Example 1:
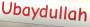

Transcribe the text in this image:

Ubaydullah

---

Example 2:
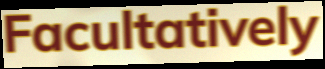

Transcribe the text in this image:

Facultatively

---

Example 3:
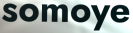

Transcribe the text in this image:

somoye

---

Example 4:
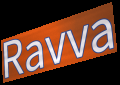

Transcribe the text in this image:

Ravva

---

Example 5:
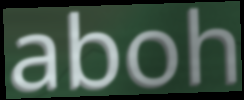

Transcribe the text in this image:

aboh